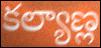
కల్యాణ్ల